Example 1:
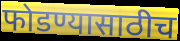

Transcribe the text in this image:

फोडण्यासाठीच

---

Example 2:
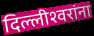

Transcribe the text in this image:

दिल्लीश्वरांना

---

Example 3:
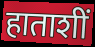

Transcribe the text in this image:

हाताशीं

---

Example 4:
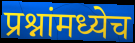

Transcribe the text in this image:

प्रश्नांमध्येच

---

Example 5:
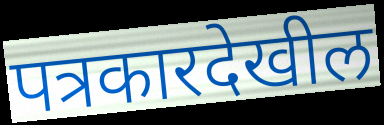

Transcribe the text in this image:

पत्रकारदेखील